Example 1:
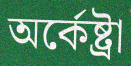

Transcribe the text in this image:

অর্কেষ্ট্রা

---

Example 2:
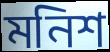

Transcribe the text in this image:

মনিশ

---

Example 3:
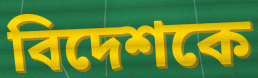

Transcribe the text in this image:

বিদেশকে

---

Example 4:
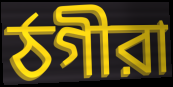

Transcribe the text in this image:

ঠগীরা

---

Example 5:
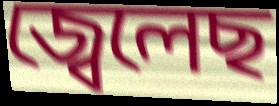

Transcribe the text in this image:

জ্বেলেছ